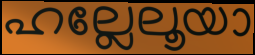
ഹല്ലേലൂയാ